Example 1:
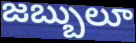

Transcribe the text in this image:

జబ్బులూ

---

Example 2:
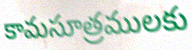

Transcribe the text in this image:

కామసూత్రములకు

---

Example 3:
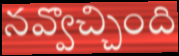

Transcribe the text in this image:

నవ్వొచ్చింది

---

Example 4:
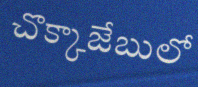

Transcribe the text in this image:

చొక్కాజేబులో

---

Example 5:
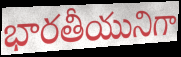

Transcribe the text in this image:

భారతీయునిగా